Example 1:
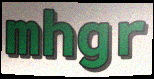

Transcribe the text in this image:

mhgr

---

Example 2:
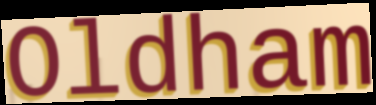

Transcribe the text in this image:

Oldham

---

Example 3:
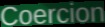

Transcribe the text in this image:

Coercion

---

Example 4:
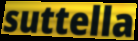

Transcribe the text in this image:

suttella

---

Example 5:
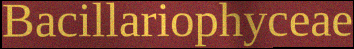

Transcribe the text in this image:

Bacillariophyceae